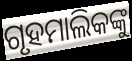
ଗୃହମାଲିକଙ୍କୁ